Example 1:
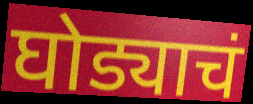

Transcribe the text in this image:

घोड्याचं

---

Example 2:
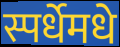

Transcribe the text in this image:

स्पर्धेमधे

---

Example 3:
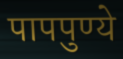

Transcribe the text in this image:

पापपुण्ये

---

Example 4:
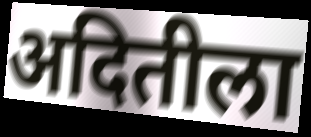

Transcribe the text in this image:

अदितीला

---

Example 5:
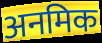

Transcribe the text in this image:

अनमिक